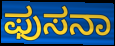
ಫುಸನಾ